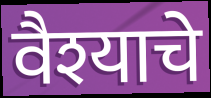
वैश्याचे